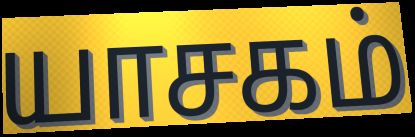
யாசகம்